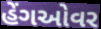
હેંગઓવર